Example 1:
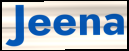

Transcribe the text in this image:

Jeena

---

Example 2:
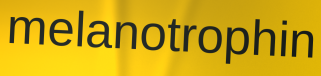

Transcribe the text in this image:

melanotrophin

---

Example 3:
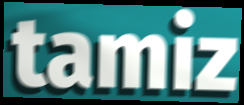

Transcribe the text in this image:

tamiz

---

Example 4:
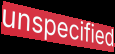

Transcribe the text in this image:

unspecified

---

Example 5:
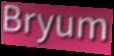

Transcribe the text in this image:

Bryum